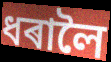
ধৰালৈ